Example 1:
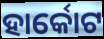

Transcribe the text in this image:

ହାର୍କୋଟ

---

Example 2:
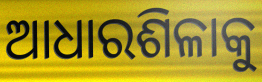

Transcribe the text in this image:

ଆଧାରଶିଳାକୁ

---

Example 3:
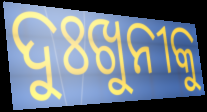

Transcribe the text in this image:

ଦୁଃଖୁନୀକୁ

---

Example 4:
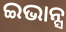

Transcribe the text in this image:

ଇଭାନ୍ସ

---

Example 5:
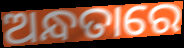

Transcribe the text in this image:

ଅନ୍ଧତାରେ